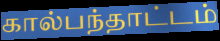
கால்பந்தாட்டம்